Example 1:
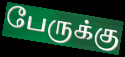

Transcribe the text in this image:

பேருக்கு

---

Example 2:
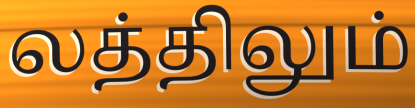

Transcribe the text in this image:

லத்திலும்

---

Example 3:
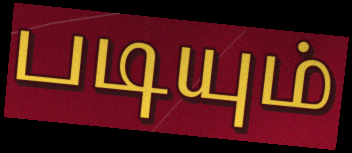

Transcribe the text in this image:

படியும்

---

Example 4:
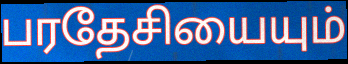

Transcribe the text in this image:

பரதேசியையும்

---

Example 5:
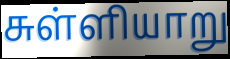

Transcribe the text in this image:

சுள்ளியாறு